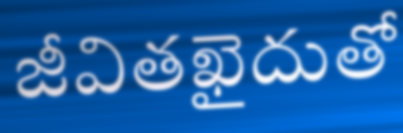
జీవితఖైదుతో